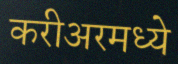
करीअरमध्ये